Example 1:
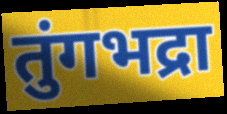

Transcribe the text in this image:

तुंगभद्रा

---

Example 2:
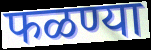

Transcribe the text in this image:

फळण्या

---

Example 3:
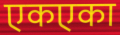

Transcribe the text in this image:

एकएका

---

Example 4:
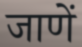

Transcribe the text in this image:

जाणें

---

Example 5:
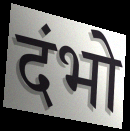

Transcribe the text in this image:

दंभो